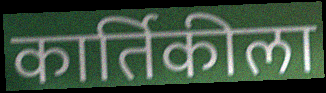
कार्तिकीला